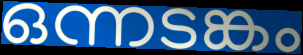
ഒന്നടങ്കം